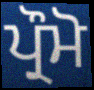
ਪ੍ਰੌਮੋ